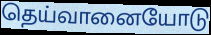
தெய்வானையோடு